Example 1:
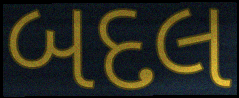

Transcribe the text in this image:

બદલ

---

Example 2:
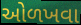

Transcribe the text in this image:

ઓળખવા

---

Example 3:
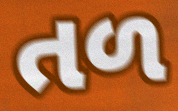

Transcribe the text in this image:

તળ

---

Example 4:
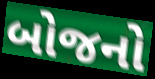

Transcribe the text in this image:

બોજનો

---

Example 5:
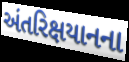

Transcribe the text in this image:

અંતરિક્ષયાનના